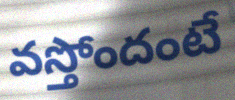
వస్తోందంటే